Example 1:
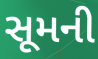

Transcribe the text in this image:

સૂમની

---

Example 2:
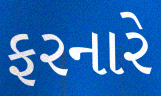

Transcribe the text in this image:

ફરનારે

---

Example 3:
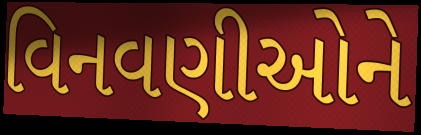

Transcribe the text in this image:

વિનવણીઓને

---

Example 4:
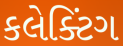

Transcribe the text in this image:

કલેક્ટિંગ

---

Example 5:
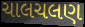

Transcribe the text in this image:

ચાલચલણ